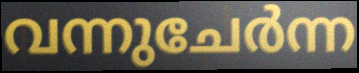
വന്നുചേർന്ന